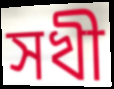
সখী